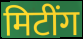
मिटींग